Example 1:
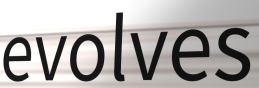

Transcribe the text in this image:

evolves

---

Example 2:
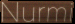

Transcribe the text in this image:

Nurmi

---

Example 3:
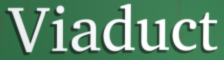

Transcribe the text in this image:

Viaduct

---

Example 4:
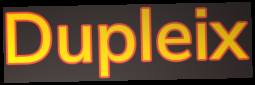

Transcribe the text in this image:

Dupleix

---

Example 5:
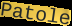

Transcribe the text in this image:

Patole